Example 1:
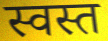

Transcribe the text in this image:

स्वस्त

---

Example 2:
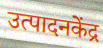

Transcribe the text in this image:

उत्पादनकेंद्र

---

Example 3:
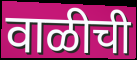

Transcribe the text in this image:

वाळीची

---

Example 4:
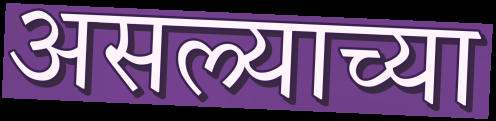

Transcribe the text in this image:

असल्याच्या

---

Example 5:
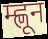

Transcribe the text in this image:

म्ह्णून